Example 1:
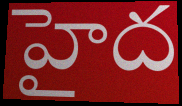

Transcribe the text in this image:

హైద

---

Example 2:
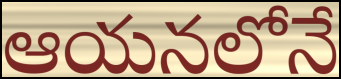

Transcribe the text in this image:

ఆయనలోనే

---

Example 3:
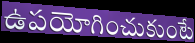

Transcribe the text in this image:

ఉపయోగించుకుంటే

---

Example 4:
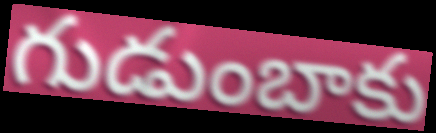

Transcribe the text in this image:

గుడుంబాకు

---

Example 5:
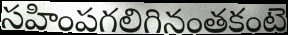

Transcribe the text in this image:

సహింపగలిగినంతకంటె